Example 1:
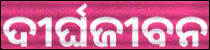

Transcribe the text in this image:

ଦୀର୍ଘଜୀବନ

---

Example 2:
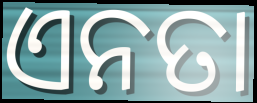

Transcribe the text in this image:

ଏନତା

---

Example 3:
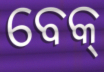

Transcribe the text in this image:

ବେକ୍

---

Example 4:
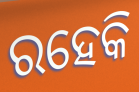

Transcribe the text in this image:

ରହେକି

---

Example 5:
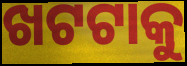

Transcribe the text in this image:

ଖଟଟାକୁ